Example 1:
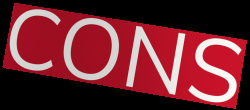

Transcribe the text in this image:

CONS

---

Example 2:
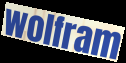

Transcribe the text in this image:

wolfram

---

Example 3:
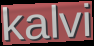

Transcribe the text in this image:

kalvi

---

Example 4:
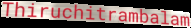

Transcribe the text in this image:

Thiruchitrambalam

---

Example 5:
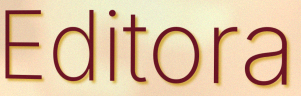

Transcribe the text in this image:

Editora